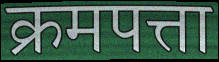
क्रमपत्ता